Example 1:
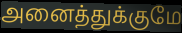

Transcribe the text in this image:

அனைத்துக்குமே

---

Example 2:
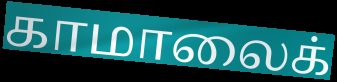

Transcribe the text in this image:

காமாலைக்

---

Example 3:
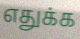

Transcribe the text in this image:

எதுக்க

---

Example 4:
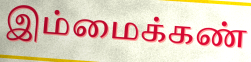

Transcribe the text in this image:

இம்மைக்கண்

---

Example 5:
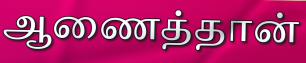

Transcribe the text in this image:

ஆணைத்தான்